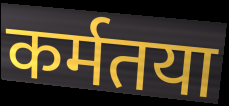
कर्मतया